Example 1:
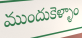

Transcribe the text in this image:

ముందుకెళ్ళాం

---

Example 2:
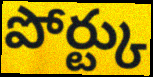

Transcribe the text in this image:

పోర్ట్కు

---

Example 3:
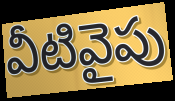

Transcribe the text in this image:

వీటివైపు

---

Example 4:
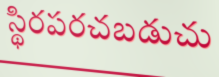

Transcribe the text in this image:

స్థిరపరచబడుచు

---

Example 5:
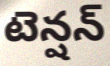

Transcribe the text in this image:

టెన్షన్